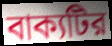
বাক্যটির